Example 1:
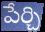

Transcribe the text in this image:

పేర్చి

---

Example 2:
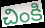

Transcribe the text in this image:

చింకి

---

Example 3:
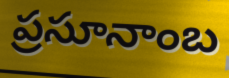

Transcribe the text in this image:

ప్రసూనాంబ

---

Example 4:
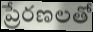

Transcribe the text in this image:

ప్రేరణలతో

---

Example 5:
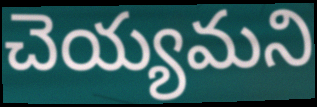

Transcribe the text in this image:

చెయ్యమని